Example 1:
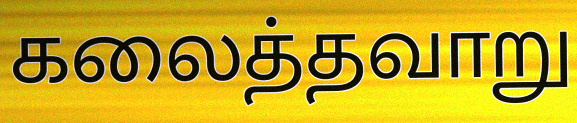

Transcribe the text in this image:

கலைத்தவாறு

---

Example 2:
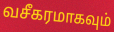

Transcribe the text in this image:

வசீகரமாகவும்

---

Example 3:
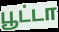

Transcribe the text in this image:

பூட்டா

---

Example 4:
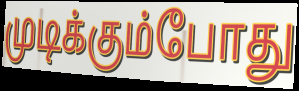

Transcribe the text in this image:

முடிக்கும்போது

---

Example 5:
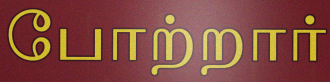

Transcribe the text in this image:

போற்றார்